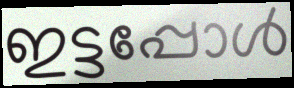
ഇട്ടപ്പോൾ